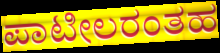
ಪಾಟೀಲರಂತಹ